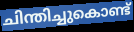
ചിന്തിച്ചുകൊണ്ട്